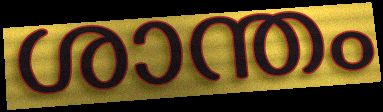
ശാന്തം